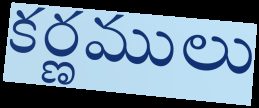
కర్ణములు